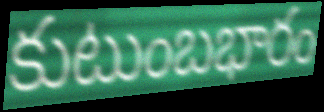
కుటుంబభారం